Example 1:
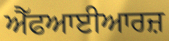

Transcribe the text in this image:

ਐੱਫਆਈਆਰਜ਼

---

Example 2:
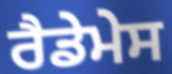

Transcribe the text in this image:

ਰੈਡੇਮੇਸ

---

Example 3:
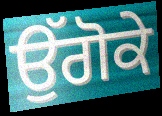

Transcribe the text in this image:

ਉੱਗੋਕੇ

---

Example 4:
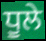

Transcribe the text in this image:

ਧੂਲੇ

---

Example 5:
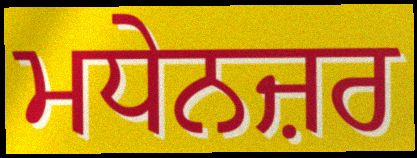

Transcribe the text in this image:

ਮਧੇਨਜ਼ਰ